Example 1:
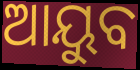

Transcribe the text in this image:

ଆୟୁବ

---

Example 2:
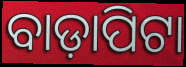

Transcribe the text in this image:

ବାଡ଼ାପିଟା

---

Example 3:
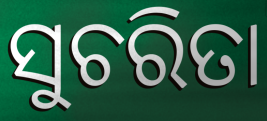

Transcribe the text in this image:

ସୁଚରିତା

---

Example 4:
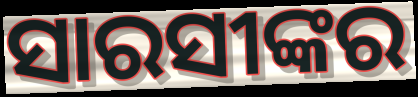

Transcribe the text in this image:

ସାରସୀଙ୍କର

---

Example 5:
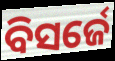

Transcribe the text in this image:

ବିସର୍ଜେ